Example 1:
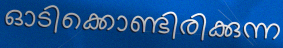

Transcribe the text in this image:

ഓടിക്കൊണ്ടിരിക്കുന്ന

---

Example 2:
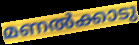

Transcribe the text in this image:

മണൽക്കാടു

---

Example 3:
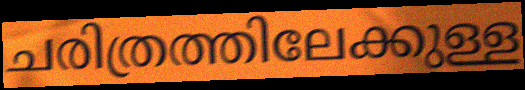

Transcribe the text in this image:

ചരിത്രത്തിലേക്കുള്ള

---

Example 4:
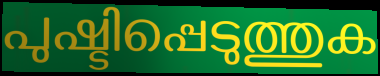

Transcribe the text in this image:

പുഷ്ടിപ്പെടുത്തുക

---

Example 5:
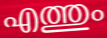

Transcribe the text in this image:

എത്തും